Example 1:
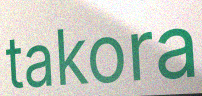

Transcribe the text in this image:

takora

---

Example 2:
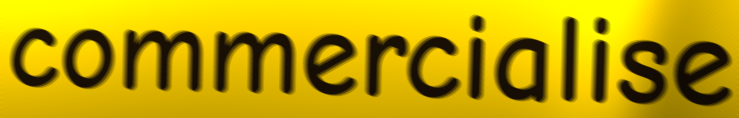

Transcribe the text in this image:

commercialise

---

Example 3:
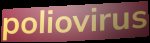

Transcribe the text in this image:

poliovirus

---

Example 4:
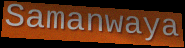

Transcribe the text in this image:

Samanwaya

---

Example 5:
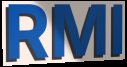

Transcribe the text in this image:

RMI